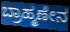
ಬ್ರಾಹ್ಮಣೇನ